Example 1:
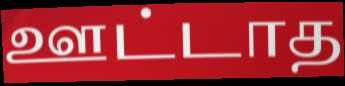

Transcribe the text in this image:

ஊட்டாத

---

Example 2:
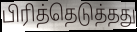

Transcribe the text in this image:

பிரித்தெடுத்தது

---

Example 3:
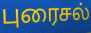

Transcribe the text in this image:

புரைசல்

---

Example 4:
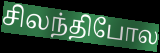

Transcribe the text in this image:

சிலந்திபோல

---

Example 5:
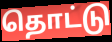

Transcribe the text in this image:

தொட்டு